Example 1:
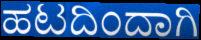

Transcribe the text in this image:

ಹಟದಿಂದಾಗಿ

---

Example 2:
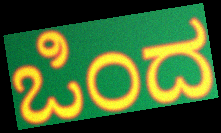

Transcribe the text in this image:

ಒಿಂದ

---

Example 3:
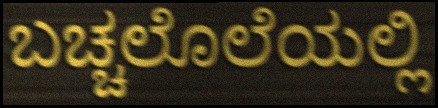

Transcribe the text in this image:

ಬಚ್ಚಲೊಲೆಯಲ್ಲಿ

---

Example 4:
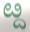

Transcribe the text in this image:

ೞ್ದ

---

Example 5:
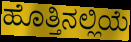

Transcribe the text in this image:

ಹೊತ್ತಿನಲ್ಲಿಯೆ